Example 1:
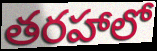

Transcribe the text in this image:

తరహాలో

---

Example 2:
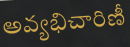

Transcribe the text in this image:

అవ్యభిచారిణీ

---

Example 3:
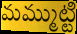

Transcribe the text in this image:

మమ్ముట్టి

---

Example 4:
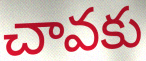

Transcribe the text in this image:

చావకు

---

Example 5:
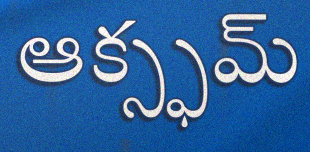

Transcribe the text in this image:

ఆక్స్ఫమ్